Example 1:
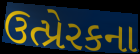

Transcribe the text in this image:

ઉત્પ્રેરકના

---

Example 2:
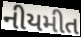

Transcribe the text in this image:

નીયમીત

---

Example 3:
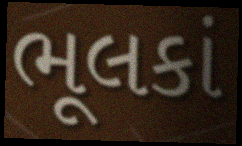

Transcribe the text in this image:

ભૂલકાં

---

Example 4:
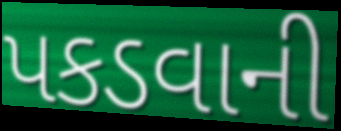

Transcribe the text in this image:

પકડવાની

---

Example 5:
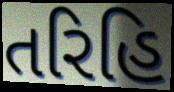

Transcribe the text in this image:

તરિહિ